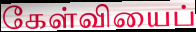
கேள்வியைப்